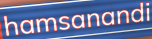
hamsanandi